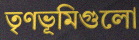
তৃণভূমিগুলো